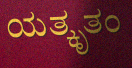
ಯತ್ಕೃತಂ